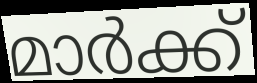
മാർക്ക്